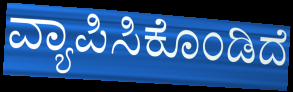
ವ್ಯಾಪಿಸಿಕೊಂಡಿದೆ